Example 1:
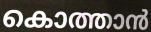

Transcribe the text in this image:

കൊത്താൻ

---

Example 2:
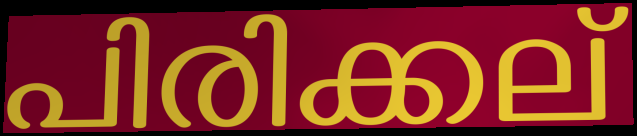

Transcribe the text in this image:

പിരിക്കല്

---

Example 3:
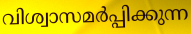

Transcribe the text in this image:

വിശ്വാസമർപ്പിക്കുന്ന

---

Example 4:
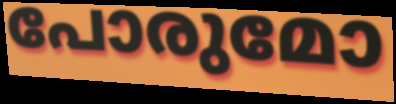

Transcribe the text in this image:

പോരുമോ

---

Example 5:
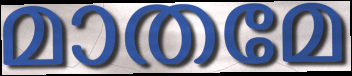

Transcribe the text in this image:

മാതമേ